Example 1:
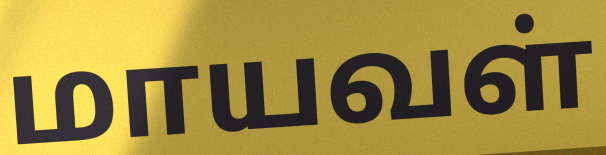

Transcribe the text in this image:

மாயவள்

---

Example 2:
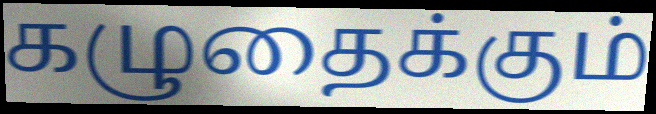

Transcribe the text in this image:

கழுதைக்கும்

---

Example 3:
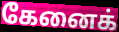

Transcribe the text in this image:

கேனைக்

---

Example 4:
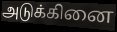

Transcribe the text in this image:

அடுக்கினை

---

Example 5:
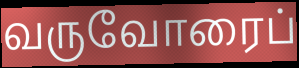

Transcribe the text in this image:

வருவோரைப்